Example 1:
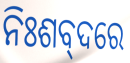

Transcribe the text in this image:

ନିଃଶବ୍‌ଦରେ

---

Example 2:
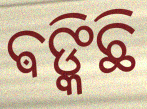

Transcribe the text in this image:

ଵଙ୍କିଛି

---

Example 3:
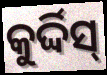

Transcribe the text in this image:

କୁର୍ଦ୍ଦିସ୍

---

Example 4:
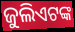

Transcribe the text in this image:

ଜୁଲିଏଟଙ୍କ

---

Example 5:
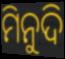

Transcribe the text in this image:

ମିନୁଦି